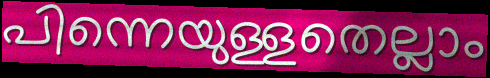
പിന്നെയുള്ളതെല്ലാം